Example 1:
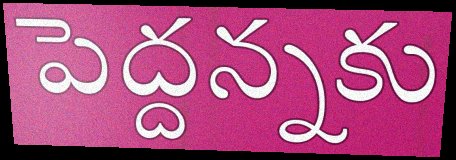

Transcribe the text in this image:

పెద్దన్నకు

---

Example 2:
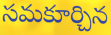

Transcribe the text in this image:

సమకూర్చిన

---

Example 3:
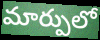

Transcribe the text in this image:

మార్పులో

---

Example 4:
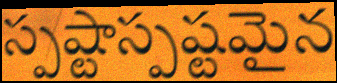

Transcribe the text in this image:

స్పష్టాస్పష్టమైన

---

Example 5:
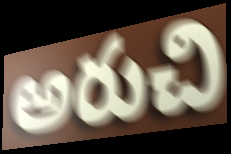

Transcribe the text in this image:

అరుచి